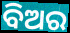
ବିଅର